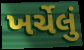
ખર્ચેલું